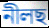
নীলছ